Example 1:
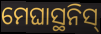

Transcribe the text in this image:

ମେଘାସ୍ଥନିସ୍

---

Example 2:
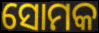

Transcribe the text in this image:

ସୋମକ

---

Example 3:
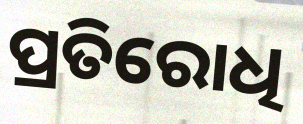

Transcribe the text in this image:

ପ୍ରତିରୋଧି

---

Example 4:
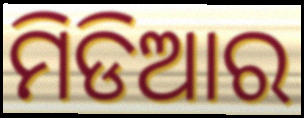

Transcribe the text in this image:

ମିଡିଆର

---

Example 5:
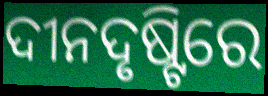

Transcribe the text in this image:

ଦୀନଦୃଷ୍ଟିରେ